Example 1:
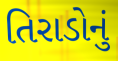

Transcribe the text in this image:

તિરાડોનું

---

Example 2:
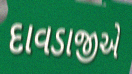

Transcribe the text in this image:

દાવડાજીએ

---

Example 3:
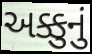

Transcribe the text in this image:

અક્કુનું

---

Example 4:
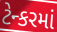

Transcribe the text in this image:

ટેન્કરમાં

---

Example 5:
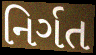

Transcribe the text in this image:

નિર્ગત